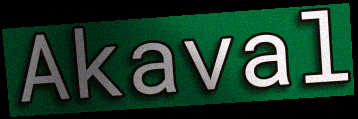
Akaval